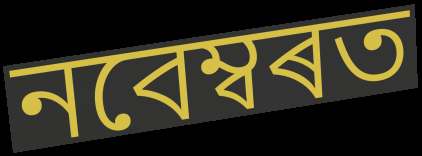
নবেম্বৰত